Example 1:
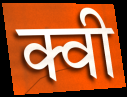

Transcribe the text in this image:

क्वी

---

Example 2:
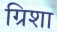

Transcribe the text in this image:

ग्रिशा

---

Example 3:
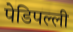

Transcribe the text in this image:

पेडिपल्ली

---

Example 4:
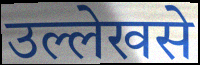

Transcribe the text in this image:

उल्लेखसे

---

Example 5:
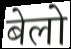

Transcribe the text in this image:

बेलो